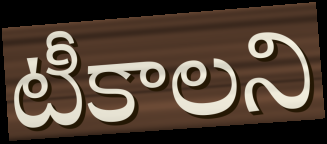
టీకాలని